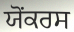
ਯੋੰਕਰਸ